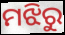
ମଝିରୁ